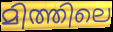
മിത്തിലെ